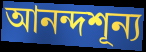
আনন্দশূন্য